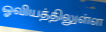
ஓவியத்திலுள்ள